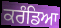
ਕਰੰਡਿਆ